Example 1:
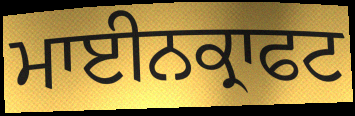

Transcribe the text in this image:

ਮਾਈਨਕ੍ਰਾਫਟ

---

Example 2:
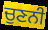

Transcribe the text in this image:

ਚੁਣਨੀ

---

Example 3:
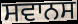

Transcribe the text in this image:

ਸਵਾਨਸ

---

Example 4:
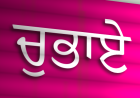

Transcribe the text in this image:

ਚੁਭਾਏ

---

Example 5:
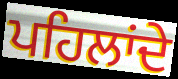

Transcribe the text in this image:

ਪਹਿਲਾਂਦੇ